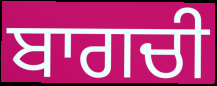
ਬਾਗਚੀ